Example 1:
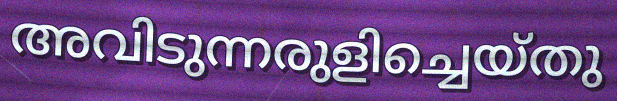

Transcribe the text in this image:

അവിടുന്നരുളിച്ചെയ്തു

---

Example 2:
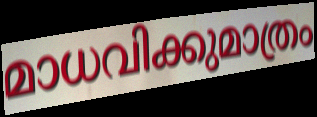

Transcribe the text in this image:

മാധവിക്കുമാത്രം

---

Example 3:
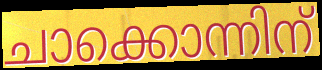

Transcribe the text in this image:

ചാക്കൊന്നിന്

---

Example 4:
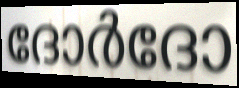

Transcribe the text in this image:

ദോർദോ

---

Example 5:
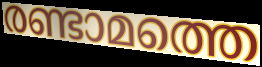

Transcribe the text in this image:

രണ്ടാമത്തെ